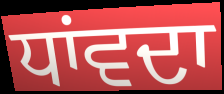
ਧਾਂਵਦਾ